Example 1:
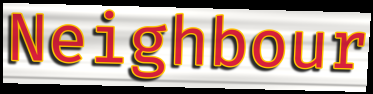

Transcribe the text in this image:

Neighbour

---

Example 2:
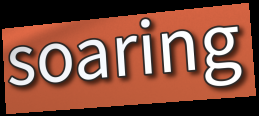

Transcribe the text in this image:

soaring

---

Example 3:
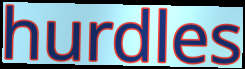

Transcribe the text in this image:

hurdles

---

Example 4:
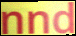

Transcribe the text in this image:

nnd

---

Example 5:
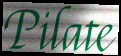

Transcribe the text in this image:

Pilate